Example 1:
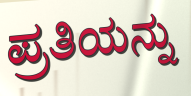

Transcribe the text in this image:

ಪ್ರತಿಯನ್ನು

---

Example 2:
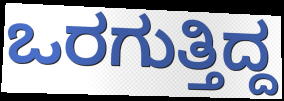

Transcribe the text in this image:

ಒರಗುತ್ತಿದ್ದ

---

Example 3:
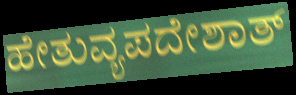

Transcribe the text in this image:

ಹೇತುವ್ಯಪದೇಶಾತ್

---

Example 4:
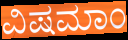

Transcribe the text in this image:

ವಿಷಮಾಂ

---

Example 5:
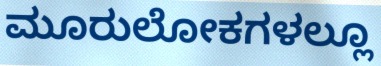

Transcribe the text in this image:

ಮೂರುಲೋಕಗಳಲ್ಲೂ